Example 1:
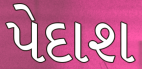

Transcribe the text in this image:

પેદાશ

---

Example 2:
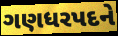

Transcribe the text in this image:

ગણધરપદને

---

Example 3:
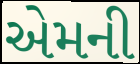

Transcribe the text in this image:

એમની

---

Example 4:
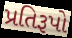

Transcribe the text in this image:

પ્રતિરૂપો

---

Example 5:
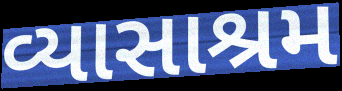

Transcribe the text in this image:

વ્યાસાશ્રમ